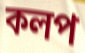
কলপ